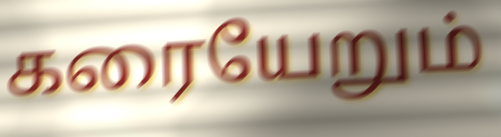
கரையேறும்